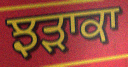
ਝੜਾਕਾ